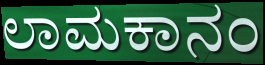
ಲಾಮಕಾನಂ